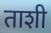
ताशी